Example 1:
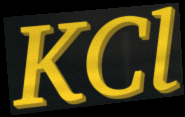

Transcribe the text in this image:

KCl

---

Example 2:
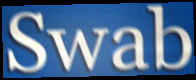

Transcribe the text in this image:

Swab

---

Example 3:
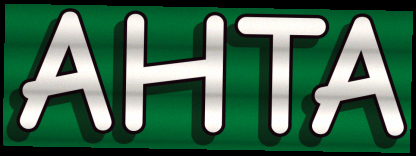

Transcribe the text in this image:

AHTA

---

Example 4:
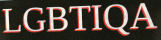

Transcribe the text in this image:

LGBTIQA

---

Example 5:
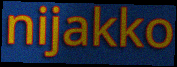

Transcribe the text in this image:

nijakko